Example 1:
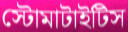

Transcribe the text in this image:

স্টোমাটাইটিস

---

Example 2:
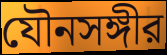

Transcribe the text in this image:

যৌনসঙ্গীর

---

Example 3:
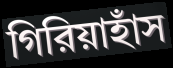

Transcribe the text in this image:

গিরিয়াহাঁস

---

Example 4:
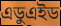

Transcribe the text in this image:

এডুএইড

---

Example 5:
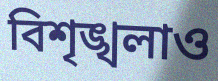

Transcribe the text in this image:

বিশৃঙ্খলাও